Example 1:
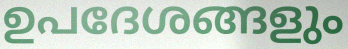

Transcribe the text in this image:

ഉപദേശങ്ങളും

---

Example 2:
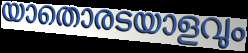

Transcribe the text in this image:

യാതൊരടയാളവും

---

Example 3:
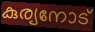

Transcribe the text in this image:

കുര്യനോട്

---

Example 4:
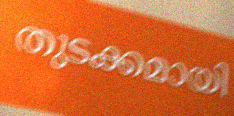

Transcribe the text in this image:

തുടക്കമായി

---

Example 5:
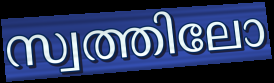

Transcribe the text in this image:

സ്വത്തിലോ